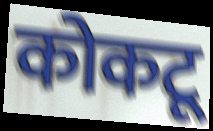
कोकटू